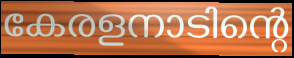
കേരളനാടിന്റെ